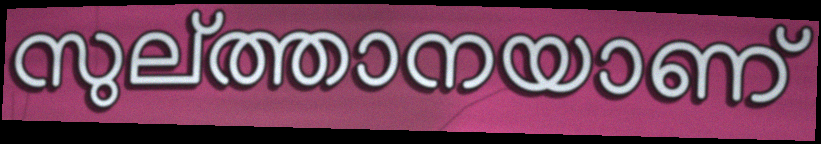
സുല്ത്താനയാണ്